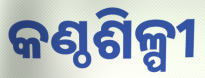
କଣ୍ଠଶିଳ୍ପୀ